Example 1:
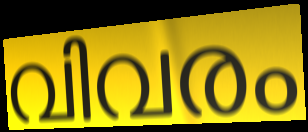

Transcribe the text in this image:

വിവരം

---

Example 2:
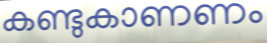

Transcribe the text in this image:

കണ്ടുകാണണം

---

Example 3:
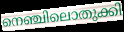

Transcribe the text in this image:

നെഞ്ചിലൊതുക്കി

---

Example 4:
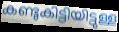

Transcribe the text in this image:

കണ്ടുകിട്ടിയിട്ടുള്ള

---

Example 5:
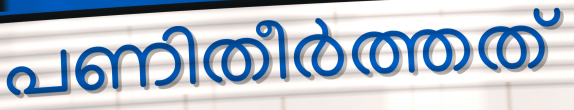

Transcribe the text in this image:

പണിതീർത്തത്